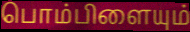
பொம்பிளையும்